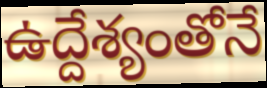
ఉద్దేశ్యంతోనే